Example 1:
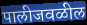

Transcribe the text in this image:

पालीजवळील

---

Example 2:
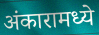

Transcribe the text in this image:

अंकारामध्ये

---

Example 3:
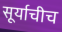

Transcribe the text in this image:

सूर्याचीच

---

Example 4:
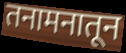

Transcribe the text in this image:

तनामनातून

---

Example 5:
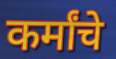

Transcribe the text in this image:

कर्मांचे